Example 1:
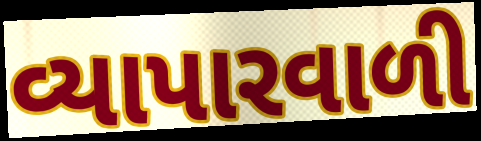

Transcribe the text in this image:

વ્યાપારવાળી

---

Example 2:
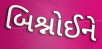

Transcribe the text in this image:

બિશ્નોઈને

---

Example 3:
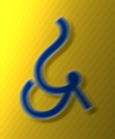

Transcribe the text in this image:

દ્વ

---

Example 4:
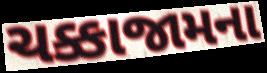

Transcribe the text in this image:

ચક્કાજામના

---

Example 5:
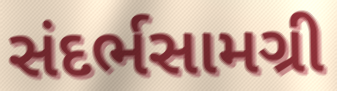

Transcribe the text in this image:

સંદર્ભસામગ્રી